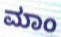
ಮಾಂ